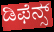
ಡಿಫೆನ್ಸ್